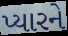
પ્યારને